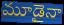
మూడైనా